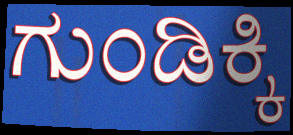
ಗುಂಡಿಕ್ಕಿ